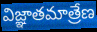
విజ్ఞాతమాత్రేణ